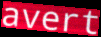
avert